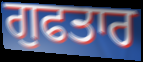
ਗੁਫਤਾਰ